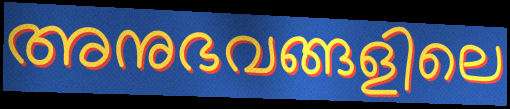
അനുഭവങ്ങളിലെ